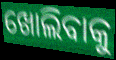
ଖୋଲିବାକୁ